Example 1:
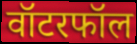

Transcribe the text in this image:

वॉटरफॉल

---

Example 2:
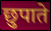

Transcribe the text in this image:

छुपाते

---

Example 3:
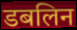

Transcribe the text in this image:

डबलिन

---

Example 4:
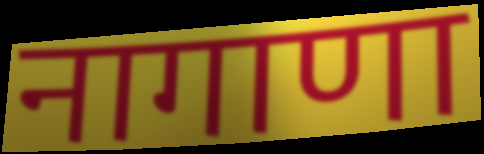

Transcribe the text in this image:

नागाणा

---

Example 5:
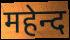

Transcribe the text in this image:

महेन्द